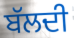
ਬੱਲਦੀ